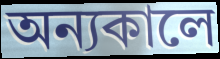
অন্যকালে